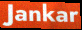
Jankar